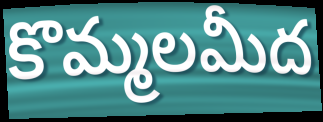
కొమ్మలమీద